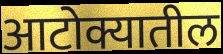
आटोक्यातील